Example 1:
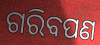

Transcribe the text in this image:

ଗରିବପଣ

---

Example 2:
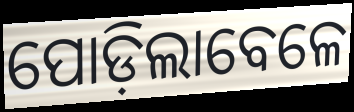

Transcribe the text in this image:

ପୋଡ଼ିଲାବେଳେ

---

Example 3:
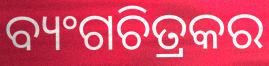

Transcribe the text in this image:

ବ୍ୟଂଗଚିତ୍ରକର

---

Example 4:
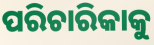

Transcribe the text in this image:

ପରିଚାରିକାକୁ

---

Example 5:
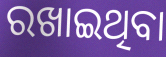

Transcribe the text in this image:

ରଖାଇଥିବା